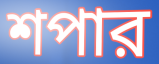
শপার